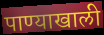
पाण्याखाली